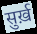
सुर्ख़